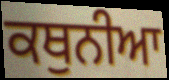
ਕਥੁਨੀਆ